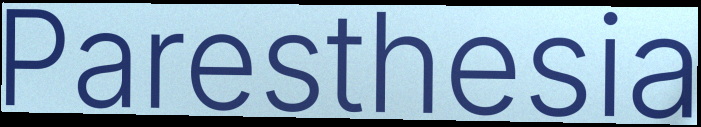
Paresthesia